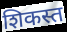
शिकस्त